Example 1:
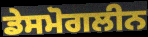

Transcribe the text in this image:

ਡੇਸਮੋਗਲੀਨ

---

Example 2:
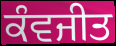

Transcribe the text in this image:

ਕੰਵਜੀਤ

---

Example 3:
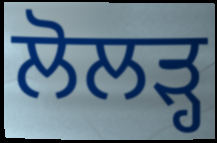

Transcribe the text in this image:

ਲੋਲੜ੍ਹ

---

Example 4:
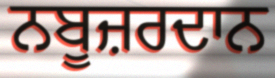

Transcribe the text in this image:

ਨਬੂਜ਼ਰਦਾਨ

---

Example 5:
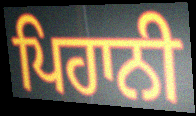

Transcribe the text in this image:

ਪਿਹਾਨੀ